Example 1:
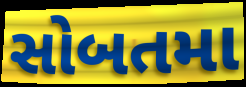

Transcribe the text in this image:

સોબતમા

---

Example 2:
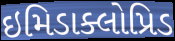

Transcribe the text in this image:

ઇમિડાક્લોપ્રિડ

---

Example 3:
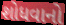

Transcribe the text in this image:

શોધવાનો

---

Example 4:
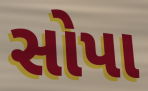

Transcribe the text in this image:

સોપા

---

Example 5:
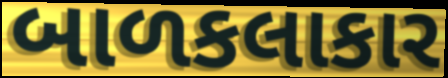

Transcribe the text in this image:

બાળકલાકાર